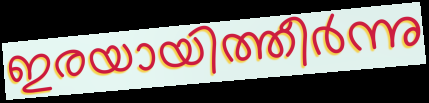
ഇരയായിത്തീർന്നു